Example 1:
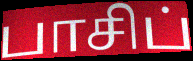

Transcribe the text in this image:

பாசிப்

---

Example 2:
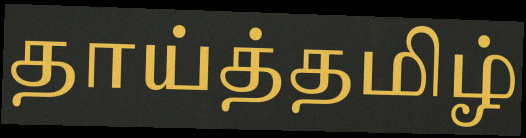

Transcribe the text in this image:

தாய்த்தமிழ்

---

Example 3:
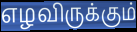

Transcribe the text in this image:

எழவிருக்கும்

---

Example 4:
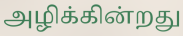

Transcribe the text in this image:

அழிக்கின்றது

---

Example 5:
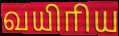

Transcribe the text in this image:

வயிரிய